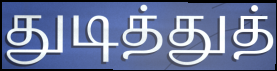
துடித்துத்